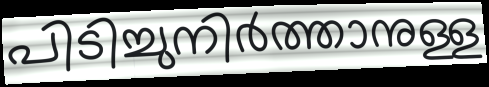
പിടിച്ചുനിർത്താനുള്ള